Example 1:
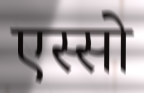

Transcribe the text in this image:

एस्सो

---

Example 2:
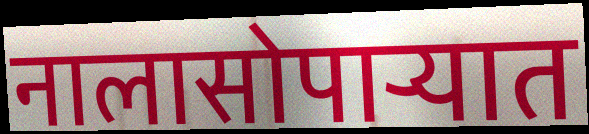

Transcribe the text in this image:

नालासोपाऱ्यात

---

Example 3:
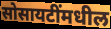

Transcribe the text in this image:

सोसायटींमधील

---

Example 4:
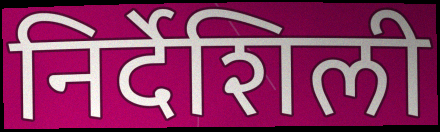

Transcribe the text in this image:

निर्देशिली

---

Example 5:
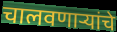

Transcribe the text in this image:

चालवणाऱ्यांचे